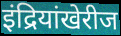
इंद्रियांखेरीज